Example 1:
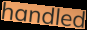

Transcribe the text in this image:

handled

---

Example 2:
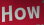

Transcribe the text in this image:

How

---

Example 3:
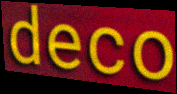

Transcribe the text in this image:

deco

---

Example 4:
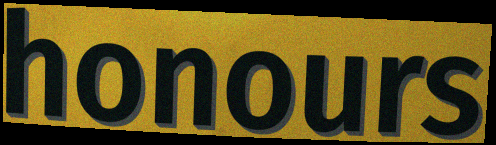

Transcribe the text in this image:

honours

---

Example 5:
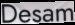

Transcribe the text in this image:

Desam